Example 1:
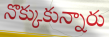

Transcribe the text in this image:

నొక్కుకున్నారు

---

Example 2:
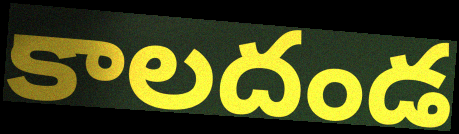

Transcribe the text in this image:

కాలదండ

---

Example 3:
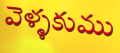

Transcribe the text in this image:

వెళ్ళకుము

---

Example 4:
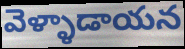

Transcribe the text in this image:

వెళ్ళాడాయన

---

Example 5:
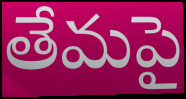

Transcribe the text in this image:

తేమపై